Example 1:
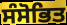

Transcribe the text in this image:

ਸੰਸੋਭਿਤ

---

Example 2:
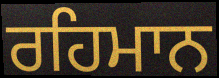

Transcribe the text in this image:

ਰਹਿਮਾਨ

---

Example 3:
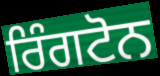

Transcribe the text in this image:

ਰਿੰਗਟੋਨ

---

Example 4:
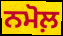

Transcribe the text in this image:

ਨਮੋਲ਼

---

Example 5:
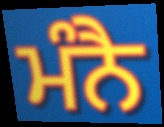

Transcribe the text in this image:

ਮੰਨੈ